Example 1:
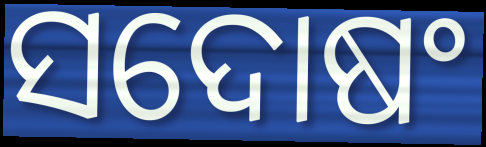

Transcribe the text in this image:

ସଦୋଷଂ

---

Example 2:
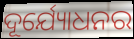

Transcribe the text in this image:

ଦୂର୍ଯ୍ୟୋଧନର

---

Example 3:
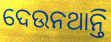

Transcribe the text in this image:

ଦେଉନଥାନ୍ତି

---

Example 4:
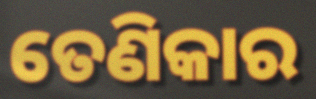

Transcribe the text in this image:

ତେଣିକାର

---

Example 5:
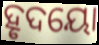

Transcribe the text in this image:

ହୃଦୟୋ